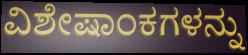
ವಿಶೇಷಾಂಕಗಳನ್ನು